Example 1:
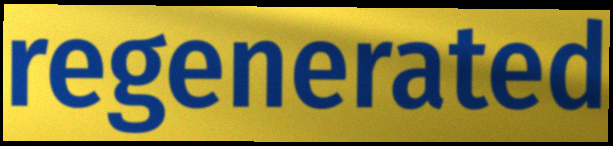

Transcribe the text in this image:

regenerated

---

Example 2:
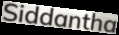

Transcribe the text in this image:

Siddantha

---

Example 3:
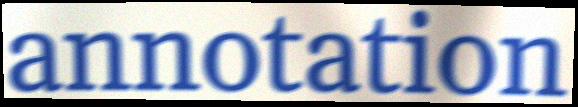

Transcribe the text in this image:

annotation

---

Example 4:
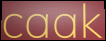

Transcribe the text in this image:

caak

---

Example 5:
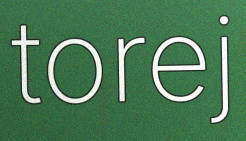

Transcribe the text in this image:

torej